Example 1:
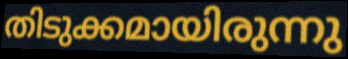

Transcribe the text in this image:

തിടുക്കമായിരുന്നു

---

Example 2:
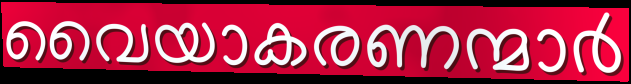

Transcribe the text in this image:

വൈയാകരണന്മാർ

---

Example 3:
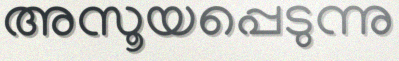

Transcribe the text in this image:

അസൂയപ്പെടുന്നു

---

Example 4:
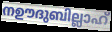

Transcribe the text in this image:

നഊദുബില്ലാഹ്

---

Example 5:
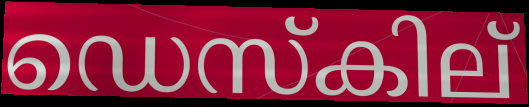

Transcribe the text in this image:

ഡെസ്കില്